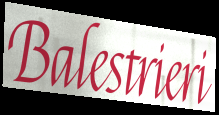
Balestrieri